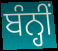
ਬੰਨ੍ਹੀਂ